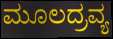
ಮೂಲದ್ರವ್ಯ